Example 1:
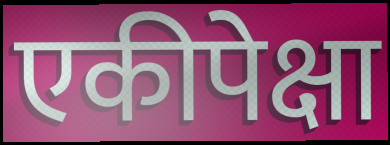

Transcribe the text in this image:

एकीपेक्षा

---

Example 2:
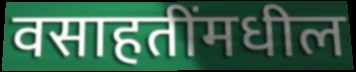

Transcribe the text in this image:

वसाहतींमधील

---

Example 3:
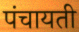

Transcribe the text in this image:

पंचायती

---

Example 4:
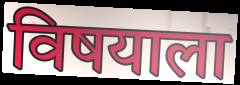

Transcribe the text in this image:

विषयाला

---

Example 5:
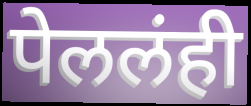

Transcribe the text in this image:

पेललंही